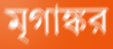
মৃগাঙ্কর